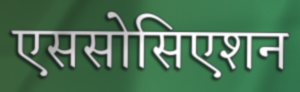
एससोसिएशन